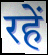
रहें